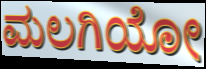
ಮಲಗಿಯೋ